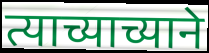
त्याच्याच्याने